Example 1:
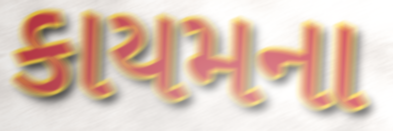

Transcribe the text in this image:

કાયમના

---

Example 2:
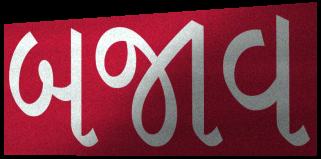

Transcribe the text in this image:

બજાવ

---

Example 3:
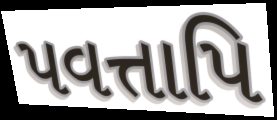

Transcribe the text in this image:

પવત્તાપિ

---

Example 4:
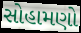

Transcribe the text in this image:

સોહામણો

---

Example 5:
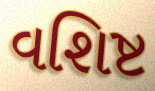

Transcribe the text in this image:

વશિષ્ટ